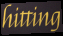
hitting